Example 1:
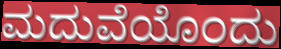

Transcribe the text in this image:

ಮದುವೆಯೊಂದು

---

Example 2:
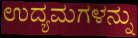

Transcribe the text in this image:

ಉದ್ಯಮಗಳನ್ನು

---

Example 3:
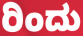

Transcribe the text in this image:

ರಿಂದು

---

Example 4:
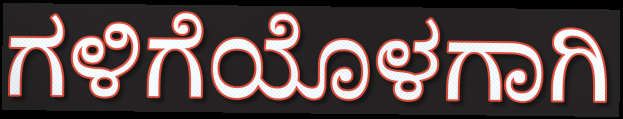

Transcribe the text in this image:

ಗಳಿಗೆಯೊಳಗಾಗಿ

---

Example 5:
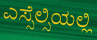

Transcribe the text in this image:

ಎಸ್ಸೆಲ್ಸಿಯಲ್ಲಿ